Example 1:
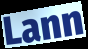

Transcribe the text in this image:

Lann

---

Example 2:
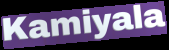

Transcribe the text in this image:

Kamiyala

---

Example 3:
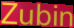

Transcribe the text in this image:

Zubin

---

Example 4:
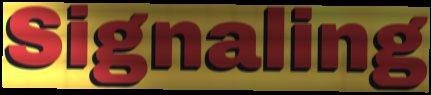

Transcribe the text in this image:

Signaling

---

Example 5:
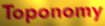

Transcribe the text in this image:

Toponomy